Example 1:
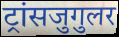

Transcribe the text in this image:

ट्रांसजुगुलर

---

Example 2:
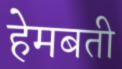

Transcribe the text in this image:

हेमबती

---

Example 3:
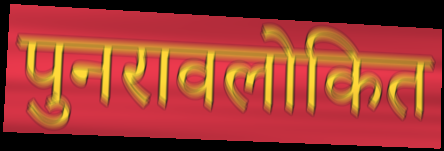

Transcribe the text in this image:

पुनरावलोकित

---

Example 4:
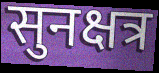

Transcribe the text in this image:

सुनक्षत्र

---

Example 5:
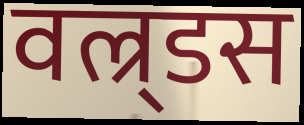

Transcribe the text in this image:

वल्र्डस